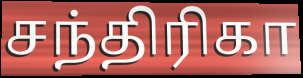
சந்திரிகா